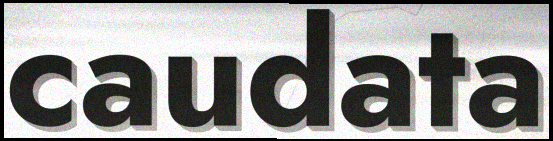
caudata